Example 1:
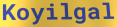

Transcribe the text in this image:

Koyilgal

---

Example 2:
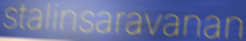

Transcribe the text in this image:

stalinsaravanan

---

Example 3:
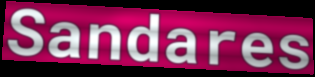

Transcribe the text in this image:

Sandares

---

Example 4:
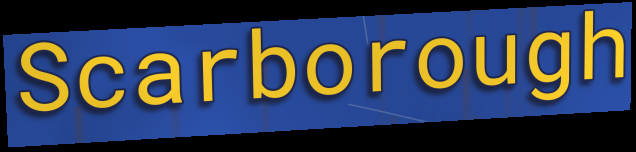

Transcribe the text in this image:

Scarborough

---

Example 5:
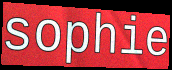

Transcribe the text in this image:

sophie